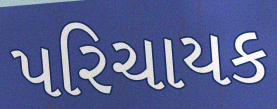
પરિચાયક